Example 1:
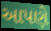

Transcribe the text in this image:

આપણે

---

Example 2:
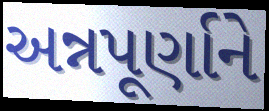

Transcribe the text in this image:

અન્નપૂર્ણાને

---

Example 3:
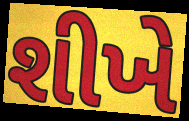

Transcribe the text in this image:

શીખે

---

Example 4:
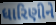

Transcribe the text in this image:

ધારિણીને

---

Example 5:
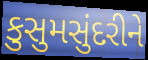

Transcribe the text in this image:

કુસુમસુંદરીને